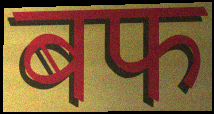
बफ